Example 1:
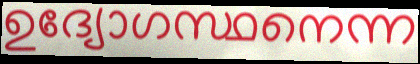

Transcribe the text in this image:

ഉദ്യോഗസ്ഥനെന്ന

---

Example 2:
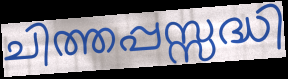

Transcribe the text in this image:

ചിത്തപ്പസ്സദ്ധി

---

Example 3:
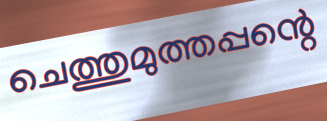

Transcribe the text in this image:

ചെത്തുമുത്തപ്പന്റെ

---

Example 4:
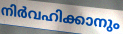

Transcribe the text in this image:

നിർവഹിക്കാനും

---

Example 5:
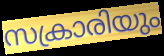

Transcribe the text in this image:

സക്രാരിയും